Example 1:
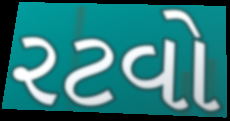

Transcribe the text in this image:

રટવો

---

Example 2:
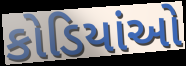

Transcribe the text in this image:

કોડિયાંઓ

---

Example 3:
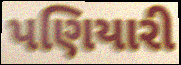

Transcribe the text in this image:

પણિયારી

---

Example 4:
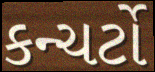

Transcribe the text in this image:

કન્ચર્ટો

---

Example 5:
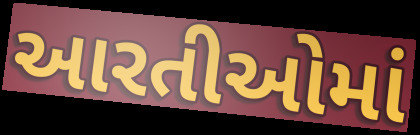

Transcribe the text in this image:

આરતીઓમાં